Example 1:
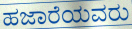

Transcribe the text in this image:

ಹಜಾರೆಯವರು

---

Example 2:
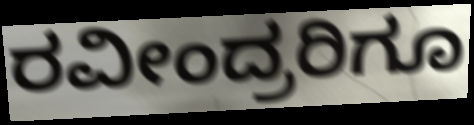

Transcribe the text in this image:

ರವೀಂದ್ರರಿಗೂ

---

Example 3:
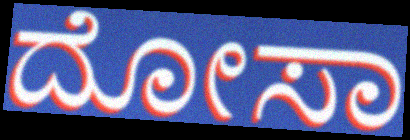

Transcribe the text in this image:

ದೋಸಾ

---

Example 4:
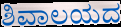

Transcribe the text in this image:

ಶಿವಾಲಯದ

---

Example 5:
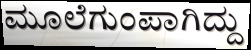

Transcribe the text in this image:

ಮೂಲೆಗುಂಪಾಗಿದ್ದು